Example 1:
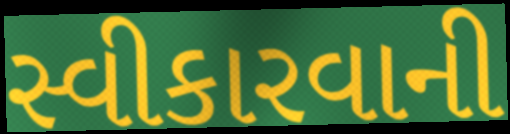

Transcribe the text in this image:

સ્વીકારવાની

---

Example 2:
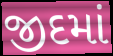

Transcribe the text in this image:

જીદમાં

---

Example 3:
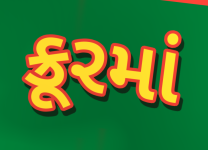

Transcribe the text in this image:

ક્રૂરમાં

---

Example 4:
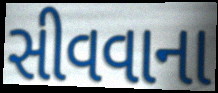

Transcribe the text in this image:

સીવવાના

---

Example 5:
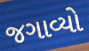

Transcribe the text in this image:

જગાવ્યો